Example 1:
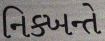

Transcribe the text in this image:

નિક્ખન્તે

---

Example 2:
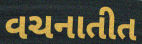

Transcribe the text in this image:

વચનાતીત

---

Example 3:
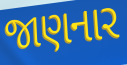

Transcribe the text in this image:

જાણનાર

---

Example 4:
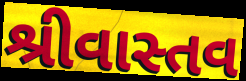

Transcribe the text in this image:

શ્રીવાસ્તવ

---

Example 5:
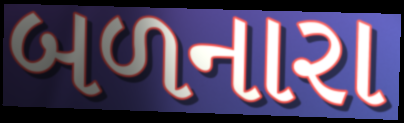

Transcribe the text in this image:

બળનારા